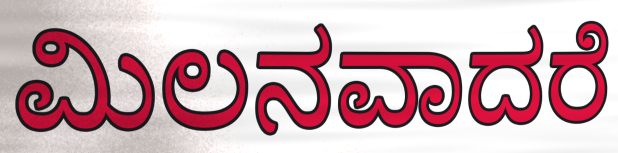
ಮಿಲನವಾದರೆ